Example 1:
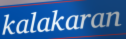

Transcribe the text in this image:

kalakaran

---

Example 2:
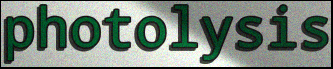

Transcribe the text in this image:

photolysis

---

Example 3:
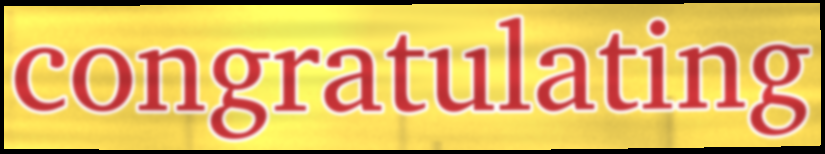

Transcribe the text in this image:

congratulating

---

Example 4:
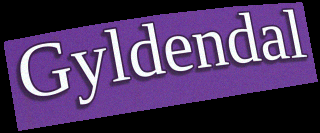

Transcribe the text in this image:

Gyldendal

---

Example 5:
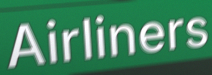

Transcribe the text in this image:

Airliners